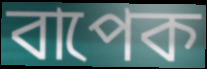
বাপেক